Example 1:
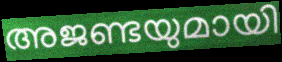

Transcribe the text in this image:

അജണ്ടയുമായി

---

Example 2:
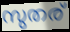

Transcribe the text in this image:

സുതര്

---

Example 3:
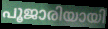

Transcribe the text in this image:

പൂജാരിയായി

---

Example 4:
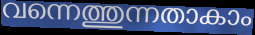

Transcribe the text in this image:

വന്നെത്തുന്നതാകാം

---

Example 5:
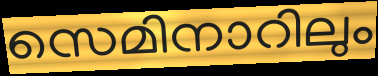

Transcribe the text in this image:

സെമിനാറിലും